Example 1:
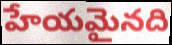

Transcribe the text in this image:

హేయమైనది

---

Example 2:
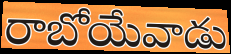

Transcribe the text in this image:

రాబోయేవాడు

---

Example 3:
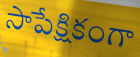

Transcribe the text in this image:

సాపేక్షికంగా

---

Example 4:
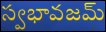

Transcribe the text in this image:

స్వభావజమ్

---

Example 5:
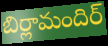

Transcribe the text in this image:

బిర్లామందిర్